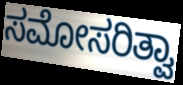
ಸಮೋಸರಿತ್ವಾ